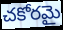
చకోరమై